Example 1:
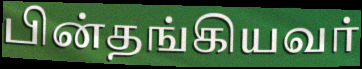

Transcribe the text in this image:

பின்தங்கியவர்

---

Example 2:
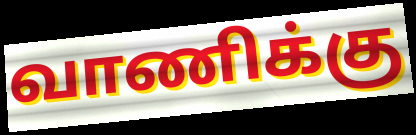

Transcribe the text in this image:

வாணிக்கு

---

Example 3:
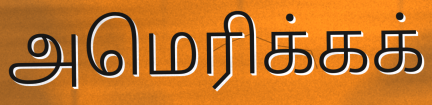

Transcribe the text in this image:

அமெரிக்கக்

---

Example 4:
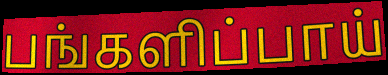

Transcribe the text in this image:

பங்களிப்பாய்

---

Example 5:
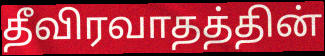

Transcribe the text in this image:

தீவிரவாதத்தின்